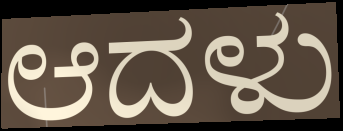
ಆದಳು